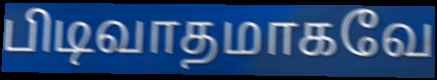
பிடிவாதமாகவே